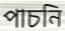
পাচনি